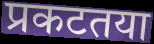
प्रकटतया